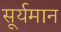
सूर्यमान